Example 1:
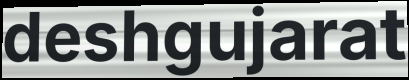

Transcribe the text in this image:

deshgujarat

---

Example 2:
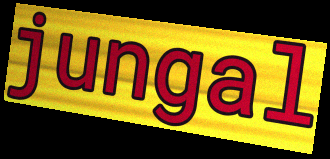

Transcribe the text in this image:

jungal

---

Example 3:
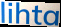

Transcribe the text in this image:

lihta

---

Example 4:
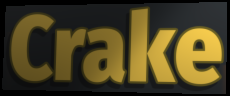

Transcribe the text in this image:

Crake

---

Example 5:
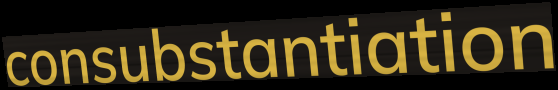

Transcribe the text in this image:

consubstantiation